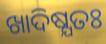
ଖାଦିଷ୍ଯତଃ